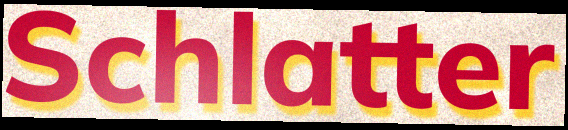
Schlatter